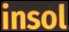
insol